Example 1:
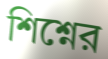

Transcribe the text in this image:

শিশ্নের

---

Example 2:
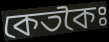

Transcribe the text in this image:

কেতকৈঃ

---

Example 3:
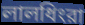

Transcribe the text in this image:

লালধিংরা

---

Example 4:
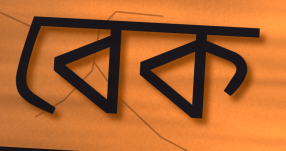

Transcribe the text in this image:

বেক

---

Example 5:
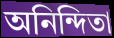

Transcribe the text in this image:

অনিন্দিতা